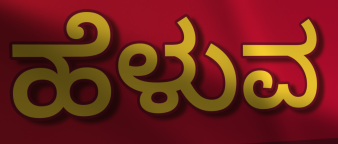
ಹೆಳುವ